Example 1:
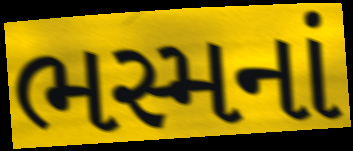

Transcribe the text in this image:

ભસ્મનાં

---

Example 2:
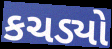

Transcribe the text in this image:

કચડ્યો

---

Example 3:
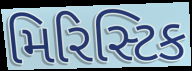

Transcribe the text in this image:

મિરિસ્ટિક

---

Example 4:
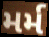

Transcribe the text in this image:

મર્મ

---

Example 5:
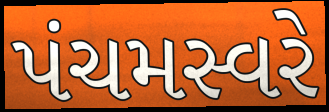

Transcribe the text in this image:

પંચમસ્વરે